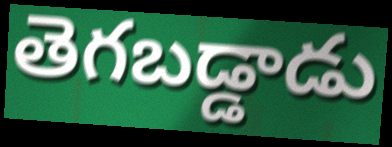
తెగబడ్డాడు